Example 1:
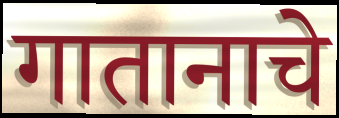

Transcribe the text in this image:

गातानाचे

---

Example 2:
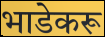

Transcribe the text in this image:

भाडेकरू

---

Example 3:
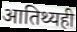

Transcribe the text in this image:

आतिथ्यही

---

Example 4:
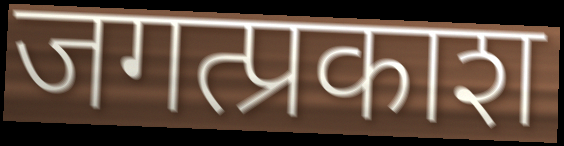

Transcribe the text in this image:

जगत्प्रकाश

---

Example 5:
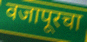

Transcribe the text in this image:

वजापूरचा